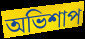
অভিশাপ